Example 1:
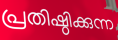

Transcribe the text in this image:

പ്രതിഷ്ഠിക്കുന്ന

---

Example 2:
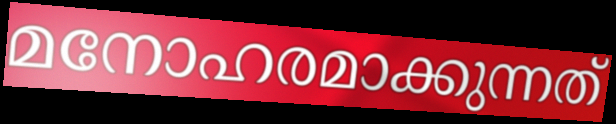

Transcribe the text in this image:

മനോഹരമാക്കുന്നത്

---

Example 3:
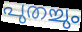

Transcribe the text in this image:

പുതച്ചും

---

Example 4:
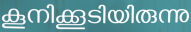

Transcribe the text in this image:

കൂനിക്കൂടിയിരുന്നു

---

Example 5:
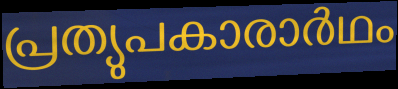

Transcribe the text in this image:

പ്രത്യുപകാരാർഥം